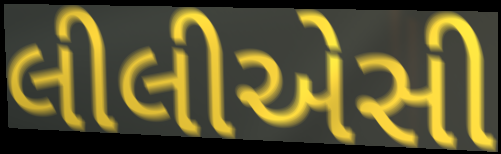
લીલીએસી